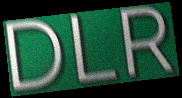
DLR